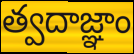
త్వదాజ్ఞాం